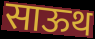
साऊथ